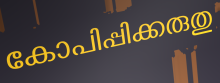
കോപിപ്പിക്കരുതു